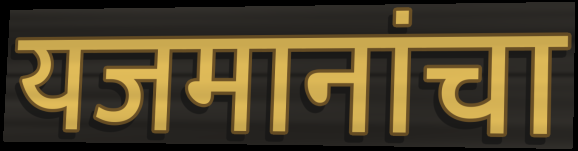
यजमानांचा